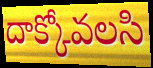
దాక్కోవలసి